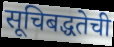
सूचिबद्धतेची